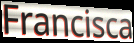
Francisca